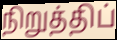
நிறுத்திப்